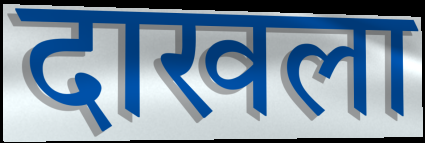
दाखला